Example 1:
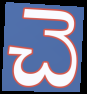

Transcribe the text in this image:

చె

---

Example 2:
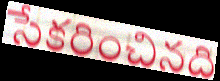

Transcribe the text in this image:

సేకరించినది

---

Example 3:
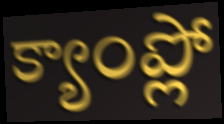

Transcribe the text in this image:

క్యాంప్లో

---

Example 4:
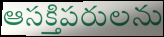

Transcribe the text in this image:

ఆసక్తిపరులను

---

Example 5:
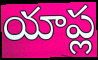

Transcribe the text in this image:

యాప్ల